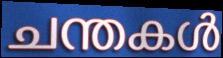
ചന്തകൾ